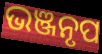
ଭଞ୍ଜନୃପ